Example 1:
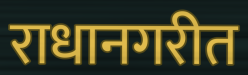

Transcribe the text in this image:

राधानगरीत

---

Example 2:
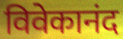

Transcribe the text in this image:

विवेकानंद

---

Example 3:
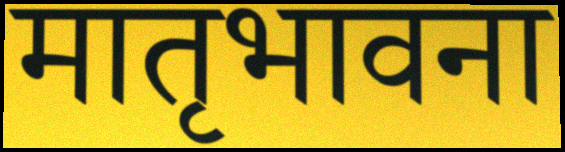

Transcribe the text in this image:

मातृभावना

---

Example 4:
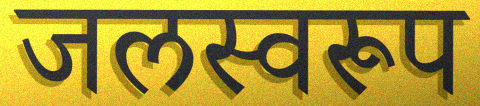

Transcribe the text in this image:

जलस्वरूप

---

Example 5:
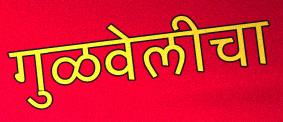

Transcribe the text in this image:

गुळवेलीचा